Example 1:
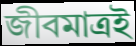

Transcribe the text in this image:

জীবমাত্রই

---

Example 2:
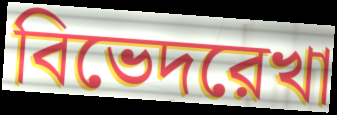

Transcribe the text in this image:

বিভেদরেখা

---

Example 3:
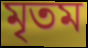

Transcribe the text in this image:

মৃতম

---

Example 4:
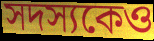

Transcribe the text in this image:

সদস্যকেও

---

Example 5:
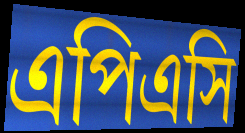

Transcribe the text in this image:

এপিএসি